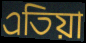
এতিয়া